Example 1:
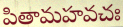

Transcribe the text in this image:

పితామహవచః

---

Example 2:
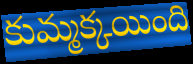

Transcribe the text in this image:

కుమ్మక్కయింది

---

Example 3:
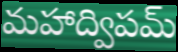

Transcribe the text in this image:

మహాద్విపమ్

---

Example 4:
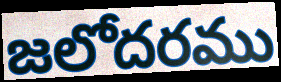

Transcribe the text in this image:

జలోదరము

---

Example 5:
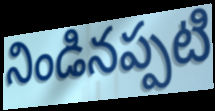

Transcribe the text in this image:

నిండినప్పటి